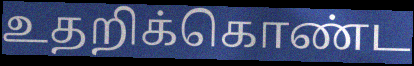
உதறிக்கொண்ட